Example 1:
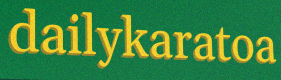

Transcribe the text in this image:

dailykaratoa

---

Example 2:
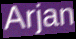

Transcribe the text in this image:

Arjan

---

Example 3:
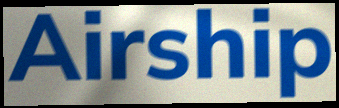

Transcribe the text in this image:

Airship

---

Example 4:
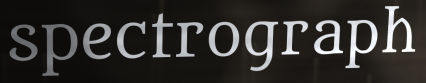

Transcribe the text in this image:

spectrograph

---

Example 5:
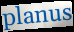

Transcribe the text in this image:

planus